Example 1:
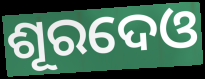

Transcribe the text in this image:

ଶୂରଦେଓ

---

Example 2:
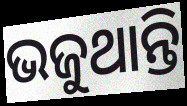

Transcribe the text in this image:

ଭଜୁଥାନ୍ତି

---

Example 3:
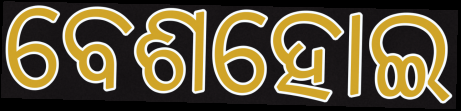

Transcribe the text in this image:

ବେଶହୋଇ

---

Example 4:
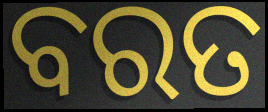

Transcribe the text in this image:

ବରତ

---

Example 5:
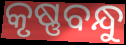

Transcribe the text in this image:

କୃଷ୍ଣବନ୍ଧୁ